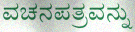
ವಚನಪತ್ರವನ್ನು